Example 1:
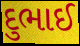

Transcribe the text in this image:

દુભાઈ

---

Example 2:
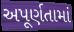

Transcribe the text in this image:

અપૂર્ણતામાં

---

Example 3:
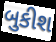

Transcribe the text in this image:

બુકીશ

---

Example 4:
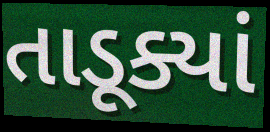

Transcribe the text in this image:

તાડૂક્યાં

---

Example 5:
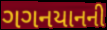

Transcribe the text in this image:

ગગનયાનની